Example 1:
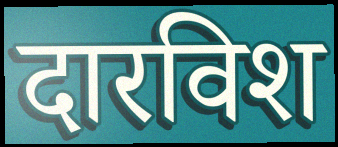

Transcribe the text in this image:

दारविश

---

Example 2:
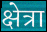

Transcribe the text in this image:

क्षेत्रा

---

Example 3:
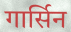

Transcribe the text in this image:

गार्सिन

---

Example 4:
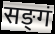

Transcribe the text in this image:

सङ्गं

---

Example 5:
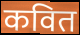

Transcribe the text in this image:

कवित